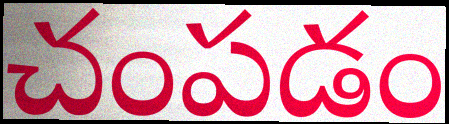
చంపడం